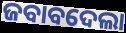
ଜବାବଦେଲା